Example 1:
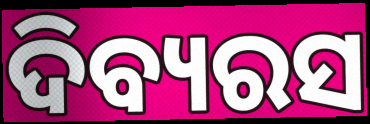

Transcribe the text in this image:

ଦିବ୍ୟରସ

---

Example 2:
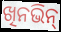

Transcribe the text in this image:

ଖିନଭିନ୍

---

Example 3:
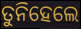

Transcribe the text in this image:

ତୁନିହେଲେ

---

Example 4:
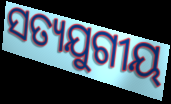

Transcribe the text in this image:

ସତ୍ୟଯୁଗୀୟ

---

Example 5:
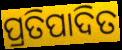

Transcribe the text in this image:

ପ୍ରତିପାଦିତ